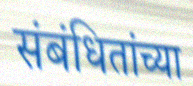
संबंधितांच्या